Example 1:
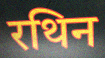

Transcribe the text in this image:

रथिन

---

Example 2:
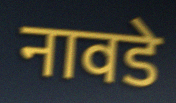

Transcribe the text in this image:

नावडे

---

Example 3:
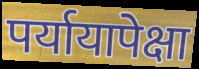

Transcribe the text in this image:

पर्यायापेक्षा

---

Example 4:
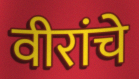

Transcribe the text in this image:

वीरांचे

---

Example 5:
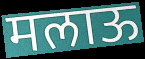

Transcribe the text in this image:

मलाऊ